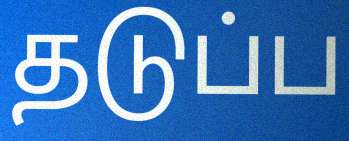
தடுப்ப